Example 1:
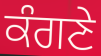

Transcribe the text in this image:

ਕੰਗਣੇ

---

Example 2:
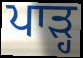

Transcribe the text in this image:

ਪਾੜ੍ਹ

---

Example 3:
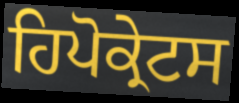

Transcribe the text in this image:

ਹਿਪੋਕ੍ਰੇਟਸ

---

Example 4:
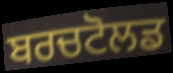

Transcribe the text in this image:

ਬਰਚਟੋਲਡ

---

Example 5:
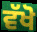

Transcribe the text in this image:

ਵੱਖੋ